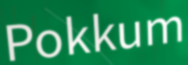
Pokkum